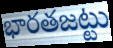
భారతజట్టు